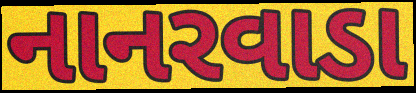
નાનરવાડા